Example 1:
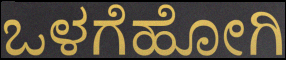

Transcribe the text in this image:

ಒಳಗೆಹೋಗಿ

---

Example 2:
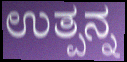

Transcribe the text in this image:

ಉತ್ಪನ್ನ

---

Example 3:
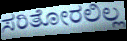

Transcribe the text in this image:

ಸರಿತೋರಲಿಲ್ಲ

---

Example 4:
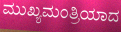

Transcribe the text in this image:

ಮುಖ್ಯಮಂತ್ರಿಯಾದ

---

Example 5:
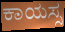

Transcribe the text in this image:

ಕಾಯಸ್ಸ